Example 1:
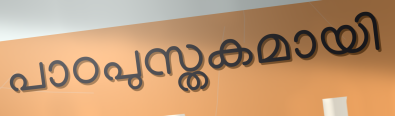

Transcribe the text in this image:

പാഠപുസ്തകമായി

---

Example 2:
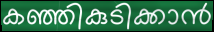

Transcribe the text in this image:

കഞ്ഞികുടിക്കാൻ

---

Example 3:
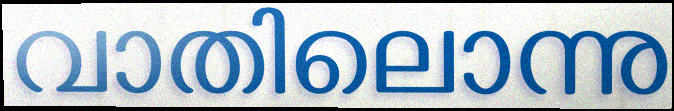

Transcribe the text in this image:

വാതിലൊന്നു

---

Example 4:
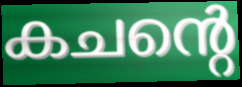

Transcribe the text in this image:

കചന്റെ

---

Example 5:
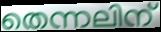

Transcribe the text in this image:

തെന്നലിന്